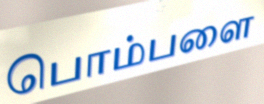
பொம்பளை